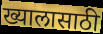
ख्यालासाठी